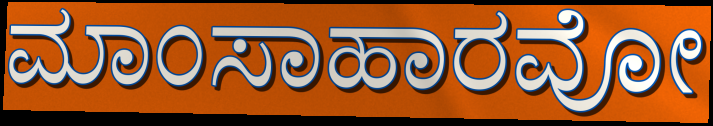
ಮಾಂಸಾಹಾರವೋ